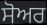
ਸੋਅਰ